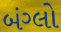
બંગ્લો